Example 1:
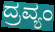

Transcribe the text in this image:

ದ್ರವ್ಯಂ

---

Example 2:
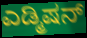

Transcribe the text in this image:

ಎಡ್ಮಿಷನ್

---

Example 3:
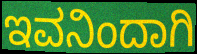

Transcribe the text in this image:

ಇವನಿಂದಾಗಿ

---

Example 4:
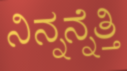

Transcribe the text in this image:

ನಿನ್ನನ್ನೆತ್ತಿ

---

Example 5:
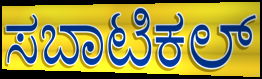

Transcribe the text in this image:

ಸಬಾಟಿಕಲ್